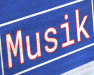
Musik